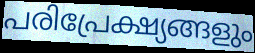
പരിപ്രേക്ഷ്യങ്ങളും